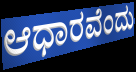
ಆಧಾರವೆಂದು